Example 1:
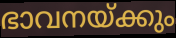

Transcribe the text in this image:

ഭാവനയ്ക്കും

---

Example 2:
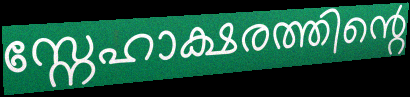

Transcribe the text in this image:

സ്നേഹാക്ഷരത്തിന്റെ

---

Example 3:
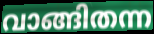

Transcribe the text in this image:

വാങ്ങിതന്ന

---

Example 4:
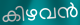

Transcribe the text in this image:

കിഴവൻ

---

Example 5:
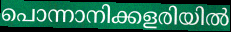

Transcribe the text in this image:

പൊന്നാനിക്കളരിയിൽ